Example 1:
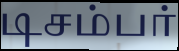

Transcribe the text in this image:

டிசம்பர்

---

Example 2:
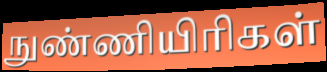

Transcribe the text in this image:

நுண்ணியிரிகள்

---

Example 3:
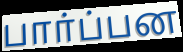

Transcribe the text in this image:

பார்ப்பன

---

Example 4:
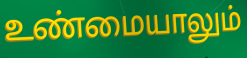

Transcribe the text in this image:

உண்மையாலும்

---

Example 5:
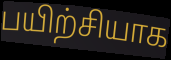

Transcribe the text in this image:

பயிற்சியாக